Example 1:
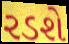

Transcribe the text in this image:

રડશે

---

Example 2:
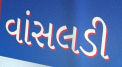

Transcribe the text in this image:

વાંસલડી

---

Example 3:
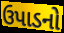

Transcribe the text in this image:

ઉપાડનો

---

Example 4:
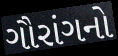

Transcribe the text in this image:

ગૌરાંગનો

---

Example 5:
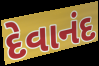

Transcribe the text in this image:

દેવાનંદ